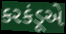
કરકંડૂએ